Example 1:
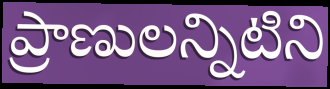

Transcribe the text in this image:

ప్రాణులన్నిటిని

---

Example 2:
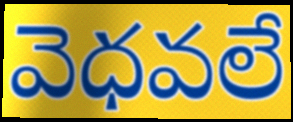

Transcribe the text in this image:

వెధవలే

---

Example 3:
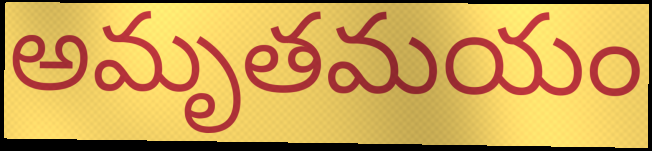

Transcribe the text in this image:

అమృతమయం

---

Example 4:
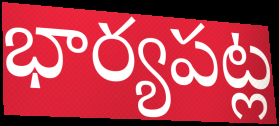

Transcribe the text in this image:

భార్యపట్ల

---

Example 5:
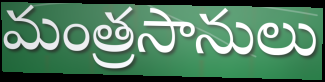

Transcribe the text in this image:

మంత్రసానులు